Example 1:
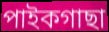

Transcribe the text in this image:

পাইকগাছা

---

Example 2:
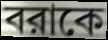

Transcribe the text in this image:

বরাকে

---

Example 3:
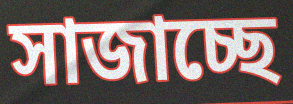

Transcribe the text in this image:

সাজাচ্ছে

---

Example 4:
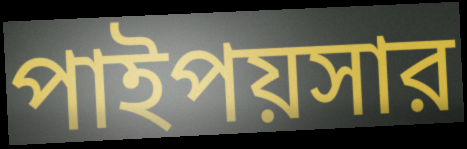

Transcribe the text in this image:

পাইপয়সার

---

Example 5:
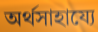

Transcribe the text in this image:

অর্থসাহায্যে